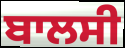
ਬਾਲਸੀ